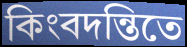
কিংবদন্তিতে